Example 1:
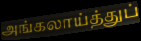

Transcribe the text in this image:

அங்கலாய்த்துப்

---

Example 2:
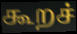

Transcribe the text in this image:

கூறச்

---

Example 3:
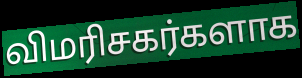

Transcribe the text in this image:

விமரிசகர்களாக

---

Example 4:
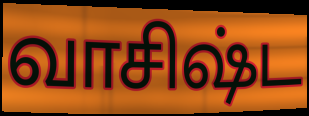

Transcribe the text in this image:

வாசிஷ்ட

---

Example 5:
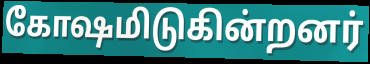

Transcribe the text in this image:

கோஷமிடுகின்றனர்